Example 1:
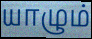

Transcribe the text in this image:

யாழும்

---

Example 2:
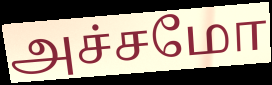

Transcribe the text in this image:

அச்சமோ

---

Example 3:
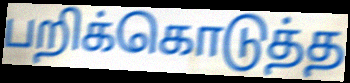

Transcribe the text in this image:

பறிக்கொடுத்த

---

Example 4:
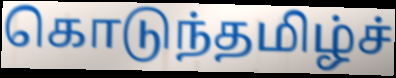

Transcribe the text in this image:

கொடுந்தமிழ்ச்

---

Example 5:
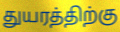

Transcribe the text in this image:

துயரத்திற்கு